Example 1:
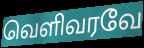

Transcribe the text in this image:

வெளிவரவே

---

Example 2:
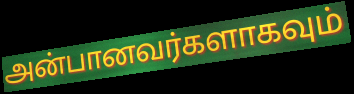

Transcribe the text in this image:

அன்பானவர்களாகவும்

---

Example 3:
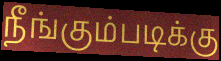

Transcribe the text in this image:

நீங்கும்படிக்கு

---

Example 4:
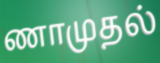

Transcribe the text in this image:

ணாமுதல்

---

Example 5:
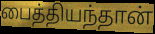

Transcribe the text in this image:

பைத்தியந்தான்